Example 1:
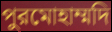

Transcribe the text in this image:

পুরমোহাম্মদি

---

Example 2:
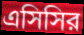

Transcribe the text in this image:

এসিসির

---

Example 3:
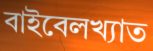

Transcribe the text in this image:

বাইবেলখ্যাত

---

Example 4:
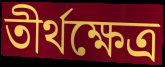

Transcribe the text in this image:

তীর্থক্ষেত্র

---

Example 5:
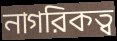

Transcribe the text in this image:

নাগরিকত্ব